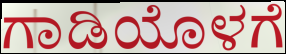
ಗಾಡಿಯೊಳಗೆ